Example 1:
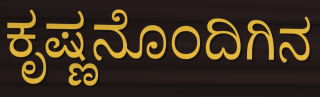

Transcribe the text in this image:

ಕೃಷ್ಣನೊಂದಿಗಿನ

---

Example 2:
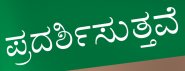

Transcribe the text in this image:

ಪ್ರದರ್ಶಿಸುತ್ತವೆ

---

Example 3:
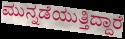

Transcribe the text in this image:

ಮುನ್ನಡೆಯುತ್ತಿದ್ದಾರೆ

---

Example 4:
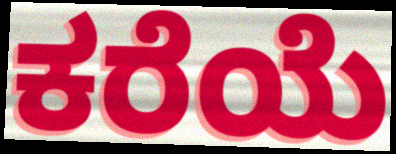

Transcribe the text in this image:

ಕರೆಯೆ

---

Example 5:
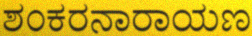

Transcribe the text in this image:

ಶಂಕರನಾರಾಯಣ